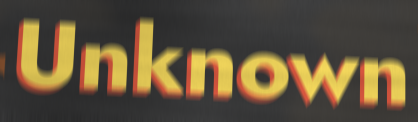
Unknown